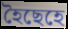
হৈছেহে